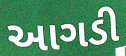
આગડી